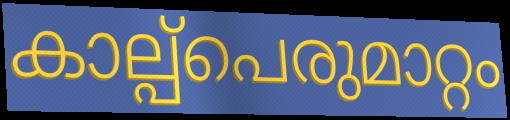
കാല്പ്പെരുമാറ്റം